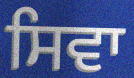
ਸਿਵਾ